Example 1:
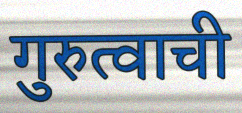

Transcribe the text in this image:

गुरुत्वाची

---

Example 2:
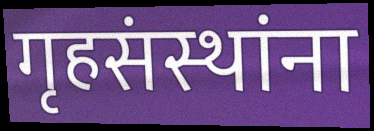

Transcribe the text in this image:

गृहसंस्थांना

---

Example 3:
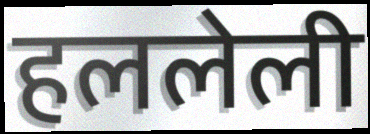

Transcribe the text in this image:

हललेली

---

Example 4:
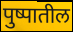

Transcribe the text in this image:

पुष्पातील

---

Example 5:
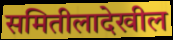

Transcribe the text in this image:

समितीलादेखील